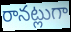
రానట్లుగా